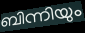
ബിന്നിയും